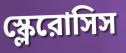
স্ক্লেরোসিস